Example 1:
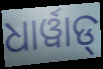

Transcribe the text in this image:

ଧାର୍ୱାଡ୍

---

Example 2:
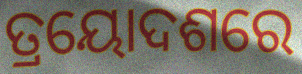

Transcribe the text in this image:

ତ୍ରୟୋଦଶରେ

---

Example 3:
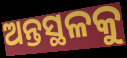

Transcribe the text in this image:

ଅନ୍ତସ୍ଥଳକୁ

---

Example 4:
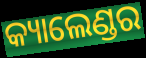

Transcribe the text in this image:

କ୍ୟାଲେଣ୍ଡର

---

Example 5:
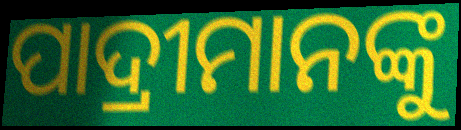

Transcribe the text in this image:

ପାଦ୍ରୀମାନଙ୍କୁ